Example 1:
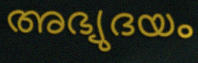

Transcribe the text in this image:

അഭ്യുദയം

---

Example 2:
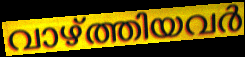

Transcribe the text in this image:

വാഴ്ത്തിയവർ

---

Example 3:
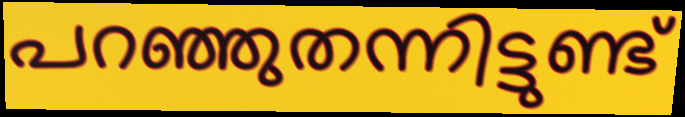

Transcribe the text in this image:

പറഞ്ഞുതന്നിട്ടുണ്ട്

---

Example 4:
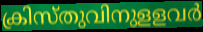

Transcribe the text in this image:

ക്രിസ്തുവിനുളളവർ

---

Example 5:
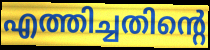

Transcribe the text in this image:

എത്തിച്ചതിന്റെ